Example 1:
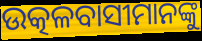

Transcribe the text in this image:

ଉତ୍କଳବାସୀମାନଙ୍କୁ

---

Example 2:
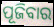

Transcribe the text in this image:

ପୂଜିବାର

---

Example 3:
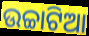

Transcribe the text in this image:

ଉଚ୍ଚାଟିଆ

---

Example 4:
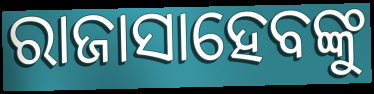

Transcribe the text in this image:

ରାଜାସାହେବଙ୍କୁ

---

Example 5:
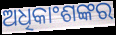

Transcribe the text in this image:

ଅଧିକାଂଶଙ୍କର